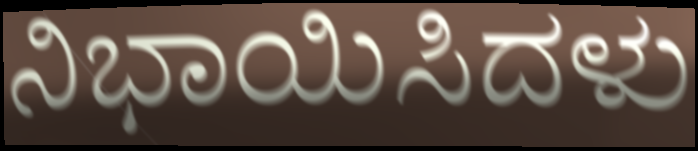
ನಿಭಾಯಿಸಿದಳು